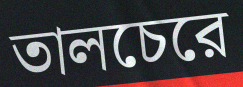
তালচেরে